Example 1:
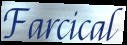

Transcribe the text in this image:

Farcical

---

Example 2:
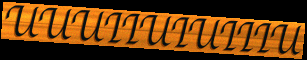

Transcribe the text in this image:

UUUIIUIUIIIU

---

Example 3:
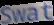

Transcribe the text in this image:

Swat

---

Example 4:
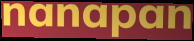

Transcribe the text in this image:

nanapan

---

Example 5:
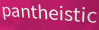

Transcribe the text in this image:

pantheistic